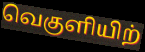
வெகுளியிற்